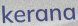
kerana